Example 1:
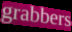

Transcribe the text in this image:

grabbers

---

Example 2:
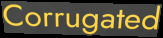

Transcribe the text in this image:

Corrugated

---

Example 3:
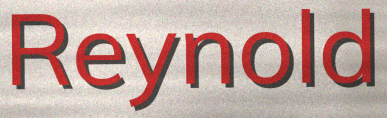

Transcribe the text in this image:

Reynold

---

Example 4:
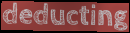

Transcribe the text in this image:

deducting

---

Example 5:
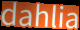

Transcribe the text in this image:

dahlia